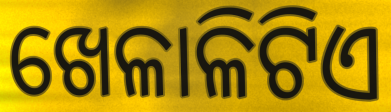
ଖେଳାଳିଟିଏ